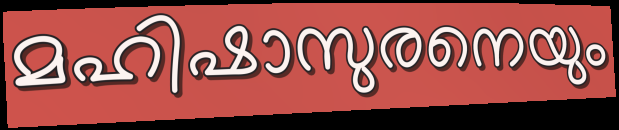
മഹിഷാസുരനെയും